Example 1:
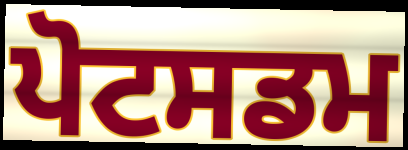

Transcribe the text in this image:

ਪੋਟਸਡਮ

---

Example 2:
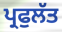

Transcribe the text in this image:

ਪ੍ਰਫੁਲੱਤ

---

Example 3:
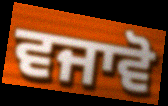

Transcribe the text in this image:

ਵਜਾਵੋ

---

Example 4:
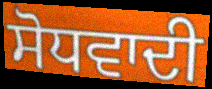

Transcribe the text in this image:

ਸੋਧਵਾਦੀ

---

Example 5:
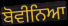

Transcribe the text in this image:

ਬੋਵੀਨਿਆ